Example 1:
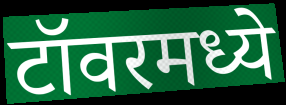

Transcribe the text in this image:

टॉवरमध्ये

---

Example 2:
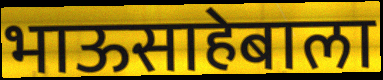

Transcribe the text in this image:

भाऊसाहेबाला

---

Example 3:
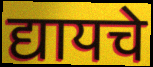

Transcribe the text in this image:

द्यायचे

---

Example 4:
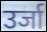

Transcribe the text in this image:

उर्जा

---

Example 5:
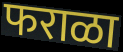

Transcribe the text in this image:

फराळा